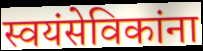
स्वयंसेविकांना